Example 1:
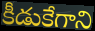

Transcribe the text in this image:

కీడుకేగాని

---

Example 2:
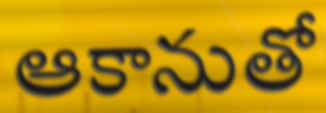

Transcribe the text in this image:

ఆకానుతో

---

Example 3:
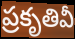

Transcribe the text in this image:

ప్రకృతివీ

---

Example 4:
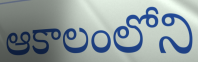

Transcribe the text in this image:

ఆకాలంలోని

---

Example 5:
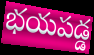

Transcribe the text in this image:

భయపడ్డ